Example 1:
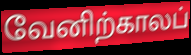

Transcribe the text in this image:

வேனிற்காலப்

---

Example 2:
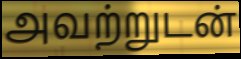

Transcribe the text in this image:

அவற்றுடன்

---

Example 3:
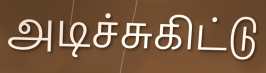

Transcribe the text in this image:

அடிச்சுகிட்டு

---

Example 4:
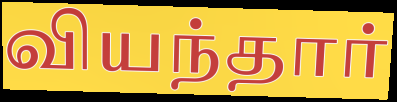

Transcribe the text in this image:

வியந்தார்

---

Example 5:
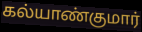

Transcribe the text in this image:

கல்யாண்குமார்